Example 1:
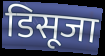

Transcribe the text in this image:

डिसूजा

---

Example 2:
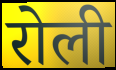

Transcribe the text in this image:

रोली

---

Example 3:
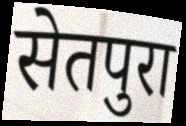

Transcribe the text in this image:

सेतपुरा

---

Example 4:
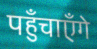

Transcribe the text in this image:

पहुँचाएँगे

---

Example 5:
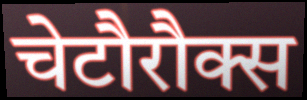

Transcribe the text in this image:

चेटौरौक्स